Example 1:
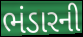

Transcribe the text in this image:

ભંડારની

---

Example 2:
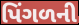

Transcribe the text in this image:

પિંગળની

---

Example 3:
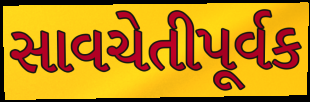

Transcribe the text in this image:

સાવચેતીપૂર્વક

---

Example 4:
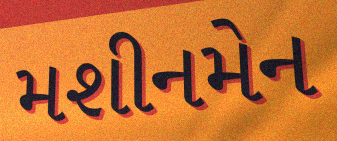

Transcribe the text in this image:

મશીનમેન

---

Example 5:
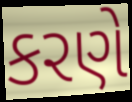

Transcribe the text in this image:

કરણે